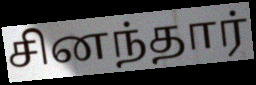
சினந்தார்